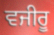
ਵਜੀਰੂ